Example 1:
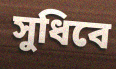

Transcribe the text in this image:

সুধিবে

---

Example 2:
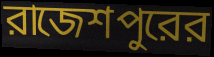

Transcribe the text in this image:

রাজেশপুরের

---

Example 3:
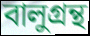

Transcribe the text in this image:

বালুগ্রন্থ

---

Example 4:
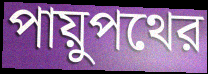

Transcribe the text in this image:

পায়ুপথের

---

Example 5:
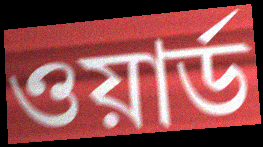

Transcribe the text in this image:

ওয়ার্ড